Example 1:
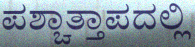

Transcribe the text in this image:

ಪಶ್ಚಾತ್ತಾಪದಲ್ಲಿ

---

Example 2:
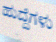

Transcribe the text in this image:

ಹುದ್ದೆಗಳು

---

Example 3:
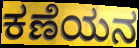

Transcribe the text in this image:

ಕಣೆಯನ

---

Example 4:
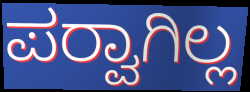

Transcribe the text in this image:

ಪರ‍್ವಾಗಿಲ್ಲ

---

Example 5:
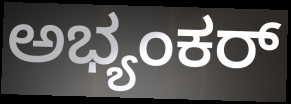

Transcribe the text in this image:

ಅಭ್ಯಂಕರ್